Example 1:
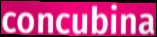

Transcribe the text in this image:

concubina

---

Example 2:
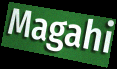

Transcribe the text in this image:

Magahi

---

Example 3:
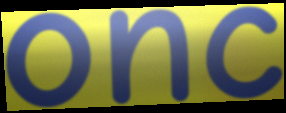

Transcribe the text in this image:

onc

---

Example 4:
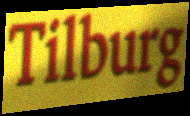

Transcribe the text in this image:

Tilburg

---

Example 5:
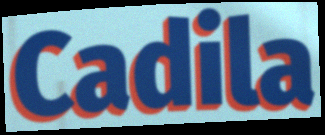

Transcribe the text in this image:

Cadila